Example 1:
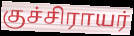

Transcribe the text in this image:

குச்சிராயர்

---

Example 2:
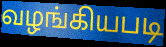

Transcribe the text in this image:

வழங்கியபடி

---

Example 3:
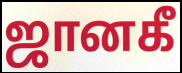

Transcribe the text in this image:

ஜானகீ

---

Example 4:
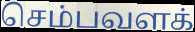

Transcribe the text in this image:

செம்பவளக்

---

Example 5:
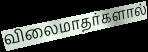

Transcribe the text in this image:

விலைமாதர்களால்